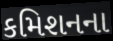
કમિશનના